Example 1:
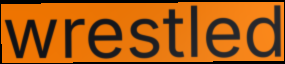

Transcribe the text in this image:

wrestled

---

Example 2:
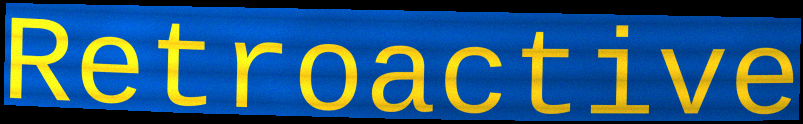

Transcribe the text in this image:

Retroactive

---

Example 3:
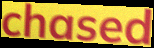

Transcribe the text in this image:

chased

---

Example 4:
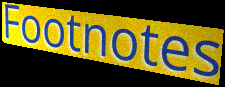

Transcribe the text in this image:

Footnotes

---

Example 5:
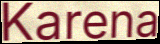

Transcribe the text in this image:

Karena